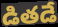
డితడే